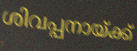
ശിവപ്പനായ്ക്ക്